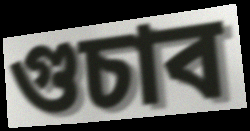
গুচাব